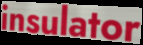
insulator